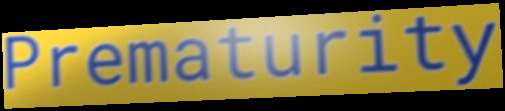
Prematurity